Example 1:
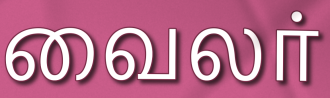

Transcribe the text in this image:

வைலர்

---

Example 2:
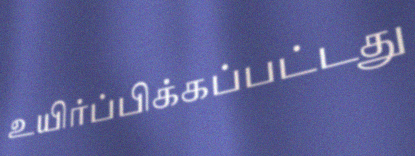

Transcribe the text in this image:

உயிர்ப்பிக்கப்பட்டது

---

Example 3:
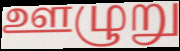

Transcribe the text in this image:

ஊழுறு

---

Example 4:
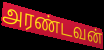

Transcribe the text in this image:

அரண்டவன்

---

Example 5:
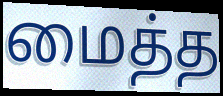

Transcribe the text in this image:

மைத்த